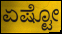
ಏಷ್ಟೋ